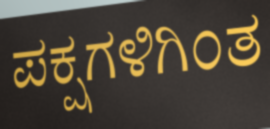
ಪಕ್ಷಗಳಿಗಿಂತ